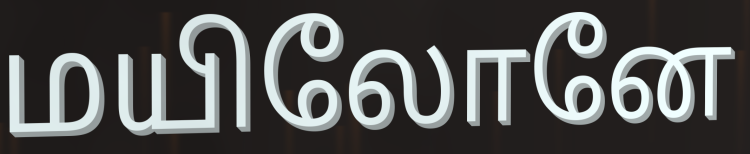
மயிலோனே